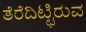
ತೆರೆದಿಟ್ಟಿರುವ